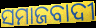
ସମାଜବାଦୀ